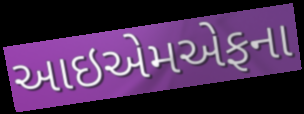
આઇએમએફના